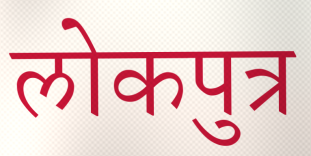
लोकपुत्र